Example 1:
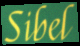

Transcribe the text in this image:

Sibel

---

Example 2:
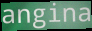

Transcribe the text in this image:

angina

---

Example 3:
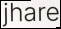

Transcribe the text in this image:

jhare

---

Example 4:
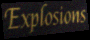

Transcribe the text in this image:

Explosions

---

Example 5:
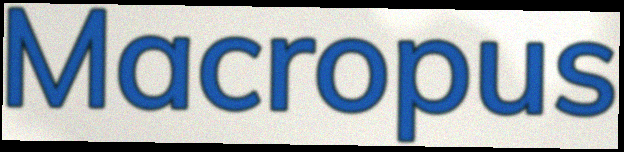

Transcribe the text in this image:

Macropus